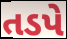
તડપે